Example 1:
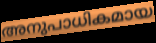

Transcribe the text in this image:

അനുപാധികമായ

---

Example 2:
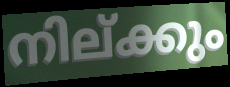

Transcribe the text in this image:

നില്ക്കും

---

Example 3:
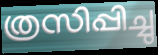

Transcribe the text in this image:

ത്രസിപ്പിച്ചു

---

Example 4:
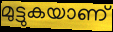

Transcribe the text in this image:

മുട്ടുകയാണ്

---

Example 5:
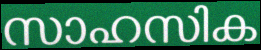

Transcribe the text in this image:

സാഹസിക